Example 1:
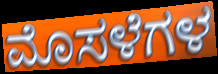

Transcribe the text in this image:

ಮೊಸಳೆಗಳ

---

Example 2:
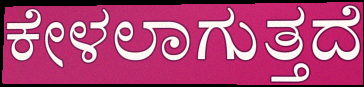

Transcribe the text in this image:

ಕೇಳಲಾಗುತ್ತದೆ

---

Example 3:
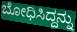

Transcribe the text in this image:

ಬೋಧಿಸಿದ್ದನ್ನು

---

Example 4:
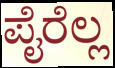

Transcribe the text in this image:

ಪೈರೆಲ್ಲ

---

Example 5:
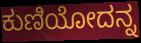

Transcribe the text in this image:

ಕುಣಿಯೋದನ್ನ